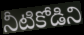
నీటికోడిని